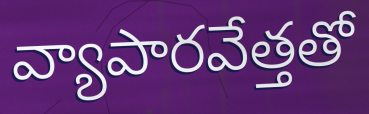
వ్యాపారవేత్తతో